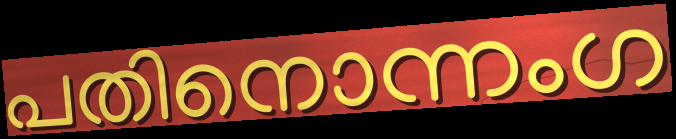
പതിനൊന്നംഗ